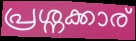
പ്രശ്നക്കാര്